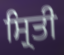
ਸ੍ਰਿਤੀ